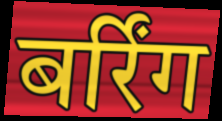
बर्रिंग